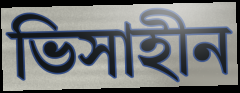
ভিসাহীন